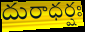
దురాధర్షః